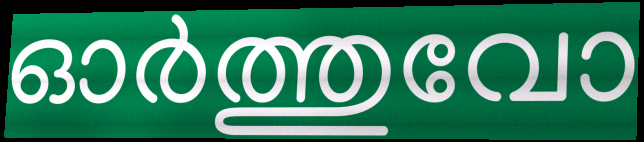
ഓർത്തുവോ